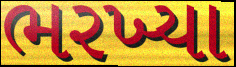
ભરખ્યા